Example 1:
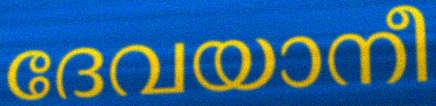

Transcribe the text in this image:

ദേവയാനീ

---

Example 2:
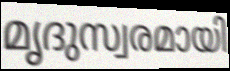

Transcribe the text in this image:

മൃദുസ്വരമായി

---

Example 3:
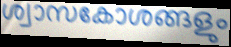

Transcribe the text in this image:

ശ്വാസകോശങ്ങളും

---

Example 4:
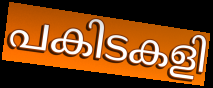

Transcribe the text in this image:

പകിടകളി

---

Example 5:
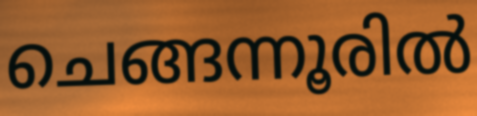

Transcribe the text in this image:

ചെങ്ങന്നൂരിൽ